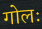
गोलः